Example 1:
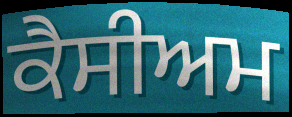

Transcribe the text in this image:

ਕੈਸੀਅਮ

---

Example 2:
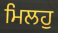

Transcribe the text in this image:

ਮਿਲਹੁ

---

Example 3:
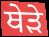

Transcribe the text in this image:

ਥੇੜੇ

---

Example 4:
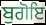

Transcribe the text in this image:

ਬੁਗੋਇ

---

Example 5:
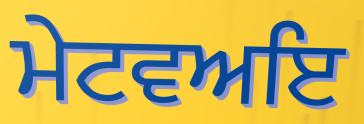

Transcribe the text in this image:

ਮੇਟਵਅਇ